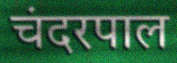
चंदरपाल